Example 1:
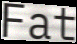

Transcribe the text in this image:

Fat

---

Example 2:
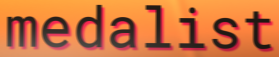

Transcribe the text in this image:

medalist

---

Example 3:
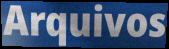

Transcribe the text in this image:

Arquivos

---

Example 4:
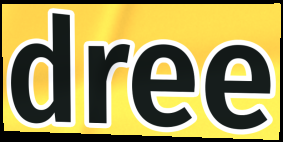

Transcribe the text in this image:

dree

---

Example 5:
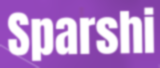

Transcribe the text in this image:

Sparshi